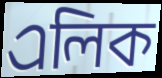
এলিক